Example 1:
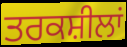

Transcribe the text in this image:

ਤਰਕਸ਼ੀਲਾਂ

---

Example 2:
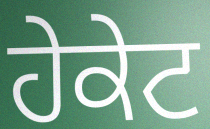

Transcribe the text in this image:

ਹੇਕੇਟ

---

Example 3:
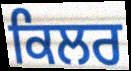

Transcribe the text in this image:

ਕਿਲਰ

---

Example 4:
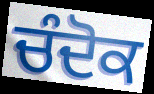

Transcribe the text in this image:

ਚੰਦੋਕ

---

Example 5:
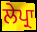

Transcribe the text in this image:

ਲੇਪ੍ਰਾ